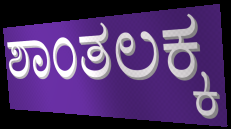
ಶಾಂತಲಕ್ಕ